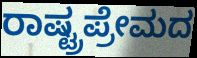
ರಾಷ್ಟ್ರಪ್ರೇಮದ